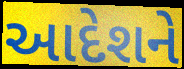
આદેશને